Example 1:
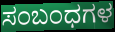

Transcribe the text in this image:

ಸಂಬಂಧಗಳ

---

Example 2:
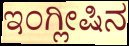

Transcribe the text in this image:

ಇಂಗ್ಲೀಷಿನ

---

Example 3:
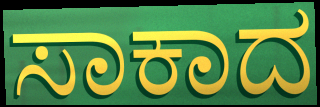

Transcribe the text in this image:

ಸಾಕಾದ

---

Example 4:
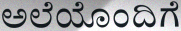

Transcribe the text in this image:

ಅಲೆಯೊಂದಿಗೆ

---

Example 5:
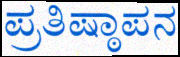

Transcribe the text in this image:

ಪ್ರತಿಷ್ಠಾಪನ